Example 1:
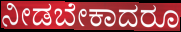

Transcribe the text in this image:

ನೀಡಬೇಕಾದರೂ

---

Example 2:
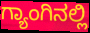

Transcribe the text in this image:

ಗ್ಯಾಂಗಿನಲ್ಲಿ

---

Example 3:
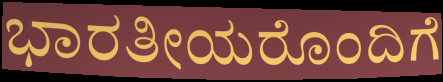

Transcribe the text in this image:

ಭಾರತೀಯರೊಂದಿಗೆ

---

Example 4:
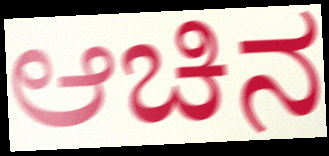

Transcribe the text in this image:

ಆಚಿನ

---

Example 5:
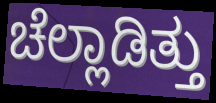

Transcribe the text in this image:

ಚೆಲ್ಲಾಡಿತ್ತು